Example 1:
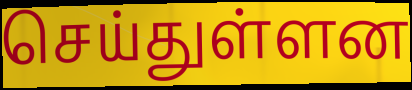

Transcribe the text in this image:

செய்துள்ளன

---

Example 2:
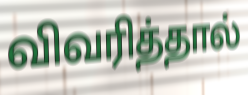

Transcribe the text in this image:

விவரித்தால்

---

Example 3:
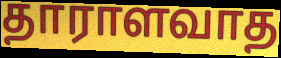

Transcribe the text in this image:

தாராளவாத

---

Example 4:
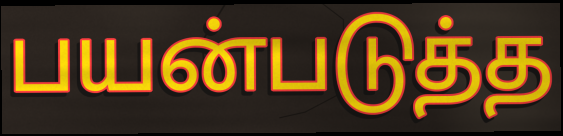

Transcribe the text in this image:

பயன்படுத்த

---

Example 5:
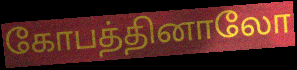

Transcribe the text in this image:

கோபத்தினாலோ